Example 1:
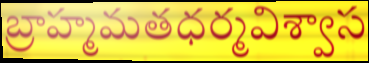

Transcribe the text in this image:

బ్రాహ్మమతధర్మవిశ్వాస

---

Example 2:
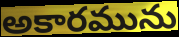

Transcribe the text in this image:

అకారమును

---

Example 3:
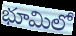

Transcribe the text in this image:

భూమిలో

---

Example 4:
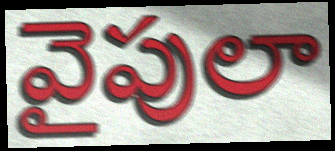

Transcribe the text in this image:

వైపులా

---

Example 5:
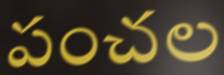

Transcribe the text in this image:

పంచల